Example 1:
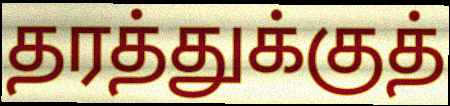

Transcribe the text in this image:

தரத்துக்குத்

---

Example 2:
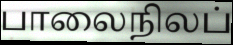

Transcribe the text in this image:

பாலைநிலப்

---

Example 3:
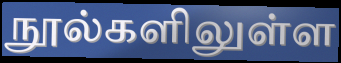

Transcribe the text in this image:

நூல்களிலுள்ள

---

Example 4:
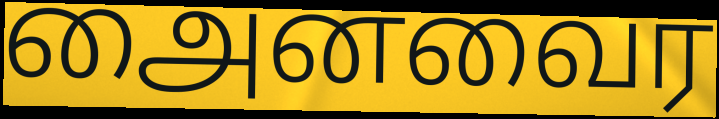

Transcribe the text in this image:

அைனவைர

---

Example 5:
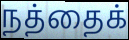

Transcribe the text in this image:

நத்தைக்